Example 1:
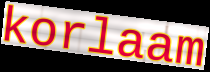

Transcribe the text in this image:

korlaam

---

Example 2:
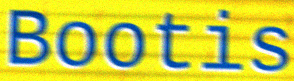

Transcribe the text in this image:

Bootis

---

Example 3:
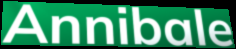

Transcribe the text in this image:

Annibale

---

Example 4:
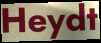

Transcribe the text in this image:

Heydt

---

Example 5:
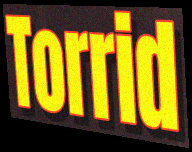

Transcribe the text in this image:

Torrid